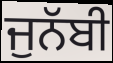
ਜੁਨੱਬੀ